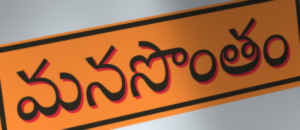
మనసొంతం